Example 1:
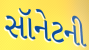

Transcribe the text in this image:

સૉનેટની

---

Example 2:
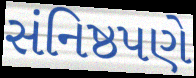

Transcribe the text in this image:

સંનિષ્ઠપણે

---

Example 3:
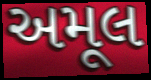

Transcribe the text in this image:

અમૂલ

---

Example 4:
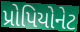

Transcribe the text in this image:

પ્રોપિયોનેટ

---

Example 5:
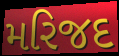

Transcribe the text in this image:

મરિજદ